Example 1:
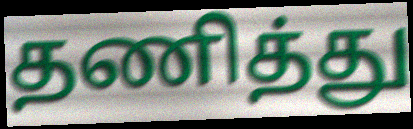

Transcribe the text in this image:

தணித்து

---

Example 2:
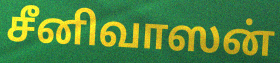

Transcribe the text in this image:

சீனிவாஸன்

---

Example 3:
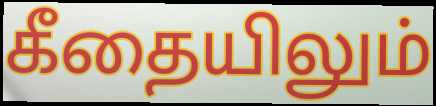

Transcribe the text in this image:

கீதையிலும்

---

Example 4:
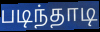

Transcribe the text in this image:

படிந்தாடி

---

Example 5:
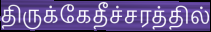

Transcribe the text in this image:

திருக்கேதீச்சரத்தில்